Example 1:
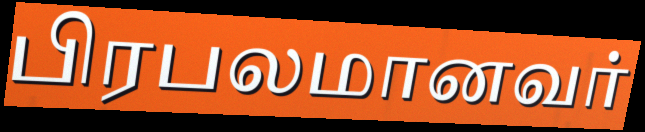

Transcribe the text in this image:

பிரபலமானவர்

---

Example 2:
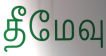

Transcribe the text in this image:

தீமேவு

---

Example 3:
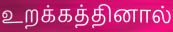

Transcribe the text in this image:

உறக்கத்தினால்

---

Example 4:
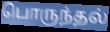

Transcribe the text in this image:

பொருந்தல்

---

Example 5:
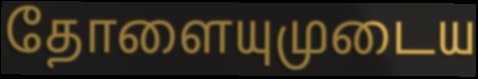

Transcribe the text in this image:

தோளையுமுடைய